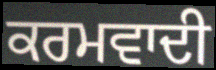
ਕਰਮਵਾਦੀ